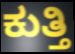
ಕುತ್ತಿ